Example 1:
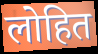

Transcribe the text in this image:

लोहित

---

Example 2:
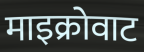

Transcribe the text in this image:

माइक्रोवाट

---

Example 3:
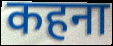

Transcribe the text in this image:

कहना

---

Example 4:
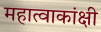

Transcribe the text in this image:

महात्वाकांक्षी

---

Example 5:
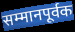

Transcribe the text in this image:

सम्मानपूर्वक